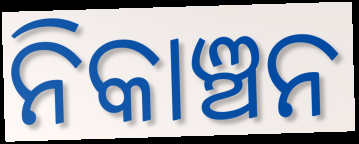
ନିକାଞ୍ଚନ